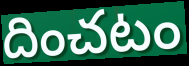
దించటం